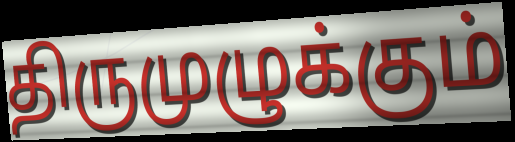
திருமுழுக்கும்